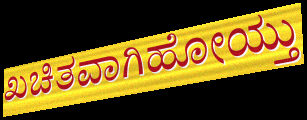
ಖಚಿತವಾಗಿಹೋಯ್ತು